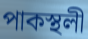
পাকস্থলী